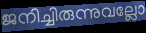
ജനിച്ചിരുന്നുവല്ലോ